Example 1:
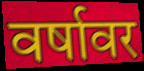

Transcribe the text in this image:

वर्षावर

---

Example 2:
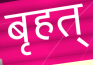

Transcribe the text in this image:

बृहत्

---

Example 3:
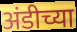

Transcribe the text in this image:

अंडीच्या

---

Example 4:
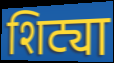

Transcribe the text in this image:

शिट्या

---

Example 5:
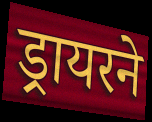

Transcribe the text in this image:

ड्रायरने